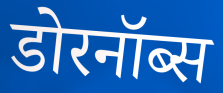
डोरनॉब्स